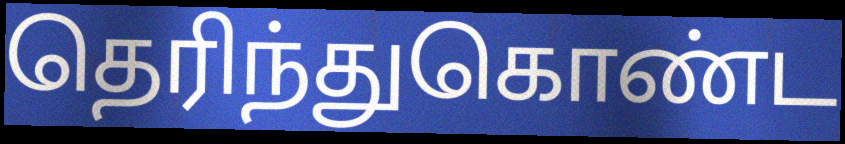
தெரிந்துகொண்ட